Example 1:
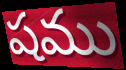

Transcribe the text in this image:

షము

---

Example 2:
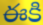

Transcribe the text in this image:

ఈకి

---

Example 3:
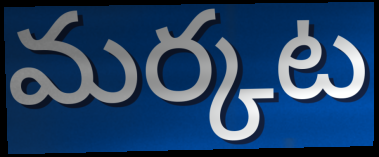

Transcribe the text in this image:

మర్కట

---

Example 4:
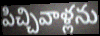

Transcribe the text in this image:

పిచ్చివాళ్లను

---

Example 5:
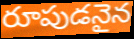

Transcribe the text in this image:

రూపుడనైన